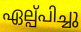
ഏല്പ്പിച്ചു